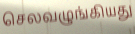
செலவழுங்கியது